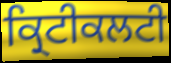
ਕ੍ਰਿਟੀਕਲਟੀ